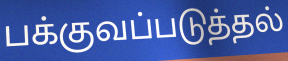
பக்குவப்படுத்தல்